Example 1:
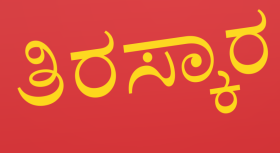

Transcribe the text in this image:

ತಿರಸ್ಕಾರ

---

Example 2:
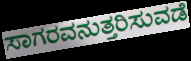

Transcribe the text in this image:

ಸಾಗರವನುತ್ತರಿಸುವಡೆ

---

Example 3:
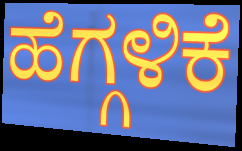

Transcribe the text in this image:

ಹೆಗ್ಗಳಿಕೆ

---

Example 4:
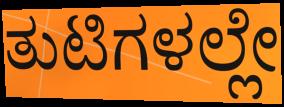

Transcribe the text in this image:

ತುಟಿಗಳಲ್ಲೇ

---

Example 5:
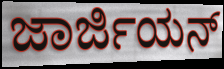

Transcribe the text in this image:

ಜಾರ್ಜಿಯನ್